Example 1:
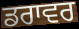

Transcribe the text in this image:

ਡਰਾਵਰ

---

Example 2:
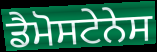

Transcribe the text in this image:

ਡੈਮੋਸਟੇਨੇਸ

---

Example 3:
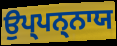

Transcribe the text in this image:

ਉਪ੍ਪਨ੍ਨਾਯ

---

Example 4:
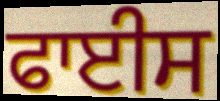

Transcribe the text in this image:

ਫਾਈਸ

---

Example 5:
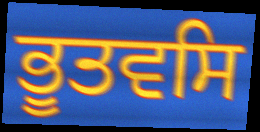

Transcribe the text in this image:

ਭੂਤਵਸਿ